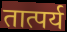
तात्पर्य